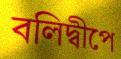
বলিদ্বীপে